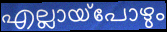
എല്ലായ്‌പോഴും